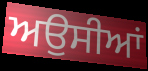
ਅਉਸੀਆਂ